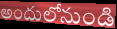
అందులోనుండి